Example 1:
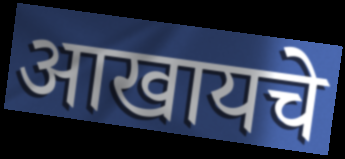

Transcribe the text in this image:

आखायचे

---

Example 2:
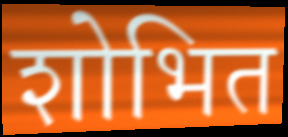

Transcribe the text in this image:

शोभित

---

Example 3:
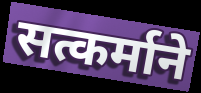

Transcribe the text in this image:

सत्कर्माने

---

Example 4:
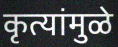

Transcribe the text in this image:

कृत्यांमुळे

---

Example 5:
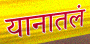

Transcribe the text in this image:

यानातलं